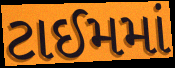
ટાઈમમાં